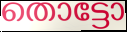
തൊട്ടോ